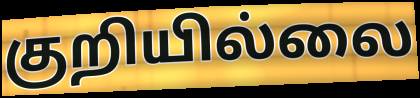
குறியில்லை